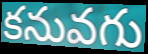
కనువగు